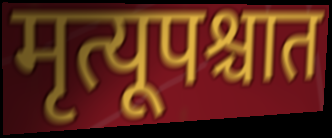
मृत्यूपश्चात